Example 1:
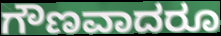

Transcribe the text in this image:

ಗೌಣವಾದರೂ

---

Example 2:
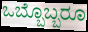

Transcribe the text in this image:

ಒಬ್ಬೊಬ್ಬರೂ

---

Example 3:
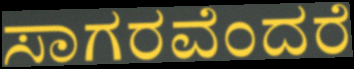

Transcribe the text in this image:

ಸಾಗರವೆಂದರೆ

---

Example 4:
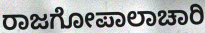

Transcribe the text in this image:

ರಾಜಗೋಪಾಲಾಚಾರಿ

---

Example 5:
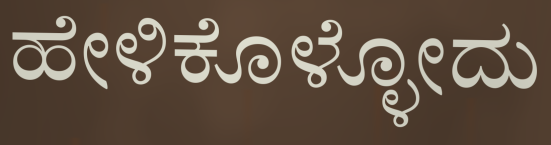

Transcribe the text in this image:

ಹೇಳಿಕೊಳ್ಳೋದು